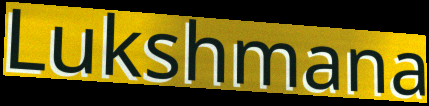
Lukshmana